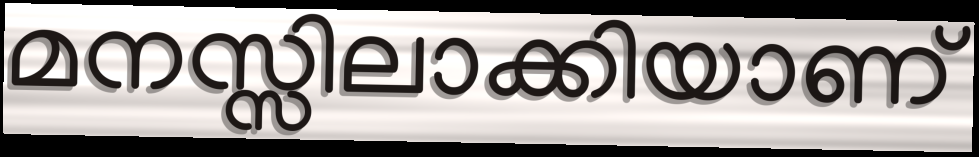
മനസ്സിലാക്കിയാണ്